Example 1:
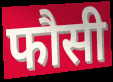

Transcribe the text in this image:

फौसी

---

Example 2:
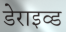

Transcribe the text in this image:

डेराइव्ड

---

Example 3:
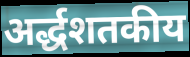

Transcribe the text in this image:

अर्द्धशतकीय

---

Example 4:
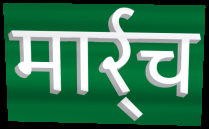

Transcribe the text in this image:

मार्र्च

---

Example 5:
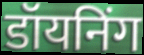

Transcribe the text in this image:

डॉयनिंग